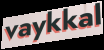
vaykkal